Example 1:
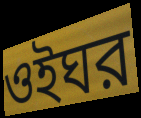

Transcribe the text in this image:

ওইঘর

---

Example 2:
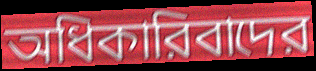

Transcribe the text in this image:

অধিকারিবাদের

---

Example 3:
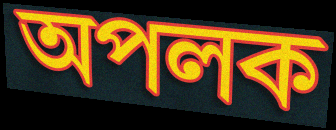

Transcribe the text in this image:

অপলক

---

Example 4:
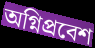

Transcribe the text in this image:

অগ্নিপ্রবেশ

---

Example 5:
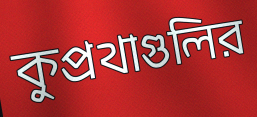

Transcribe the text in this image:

কুপ্রথাগুলির